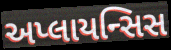
અપ્લાયન્સિસ